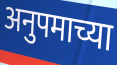
अनुपमाच्या